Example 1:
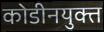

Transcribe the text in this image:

कोडीनयुक्त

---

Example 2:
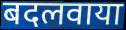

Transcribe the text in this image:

बदलवाया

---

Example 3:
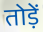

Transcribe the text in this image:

तोड़ें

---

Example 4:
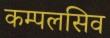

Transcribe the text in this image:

कम्पलसिव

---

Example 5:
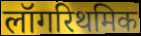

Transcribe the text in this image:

लॉगरिथमिक